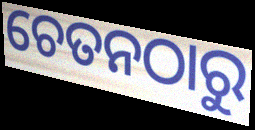
ଚେତନଠାରୁ